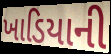
ખાડિયાની